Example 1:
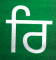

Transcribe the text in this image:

ਰਿ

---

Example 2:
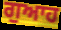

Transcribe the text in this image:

ਗੁਆਹ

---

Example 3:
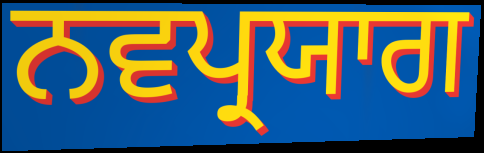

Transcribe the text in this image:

ਨਵਪ੍ਰਯਾਗ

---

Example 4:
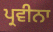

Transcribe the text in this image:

ਪ੍ਰਵੀਨਾ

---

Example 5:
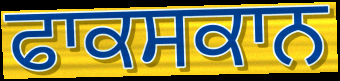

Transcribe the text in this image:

ਫਾਕਸਕਾਨ